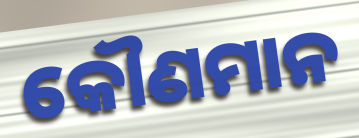
କୌଣମାନ